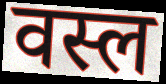
वस्ल